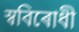
স্ববিৰোধী